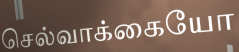
செல்வாக்கையோ